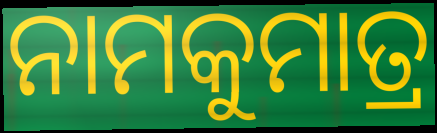
ନାମକୁମାତ୍ର